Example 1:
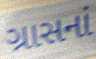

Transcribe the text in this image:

ગ્રાસનાં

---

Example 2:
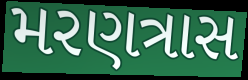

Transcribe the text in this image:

મરણત્રાસ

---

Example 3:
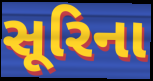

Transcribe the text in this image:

સૂરિના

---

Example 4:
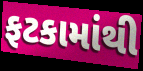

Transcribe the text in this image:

ફટકામાંથી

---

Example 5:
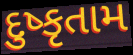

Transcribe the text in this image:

દુષ્કૃતામ